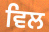
ਵਿਲ